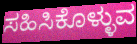
ಸಹಿಸಿಕೊಳ್ಳುವ